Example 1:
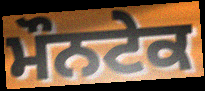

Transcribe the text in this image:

ਮੌਨਟੇਕ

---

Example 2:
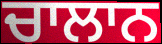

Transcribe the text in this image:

ਚਾਲਾਨ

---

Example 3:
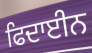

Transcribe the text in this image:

ਫਿਦਾਈਨ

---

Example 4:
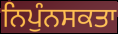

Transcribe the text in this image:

ਨਿਪੁੰਨਸਕਤਾ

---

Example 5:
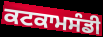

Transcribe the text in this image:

ਕਟਕਾਮਸੰਡੀ